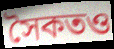
সৈকতও